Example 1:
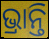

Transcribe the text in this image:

ଭ୍ରାନ୍ତି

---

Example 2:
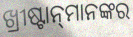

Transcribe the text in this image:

ଖ୍ରୀଷ୍ଟାନ୍‌ମାନଙ୍କର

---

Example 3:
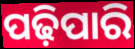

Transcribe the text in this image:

ପଢ଼ିପାରି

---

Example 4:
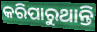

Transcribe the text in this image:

କରିପାରୁଥାନ୍ତି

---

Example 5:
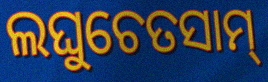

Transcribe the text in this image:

ଲଘୁଚେତସାମ୍